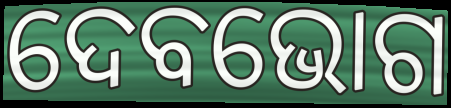
ଦେବଭୋଗ